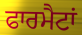
ਫਾਰਮੈਟਾਂ